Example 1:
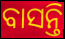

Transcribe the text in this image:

ବାସନ୍ତି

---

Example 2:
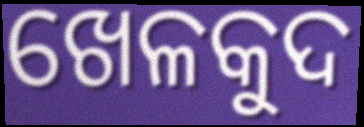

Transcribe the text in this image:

ଖେଳକୁଦ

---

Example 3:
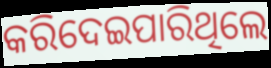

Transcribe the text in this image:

କରିଦେଇପାରିଥିଲେ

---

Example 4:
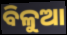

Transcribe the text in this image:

ବିଳୁଆ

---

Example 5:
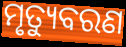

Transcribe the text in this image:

ମୃତ୍ୟୁବରଣ